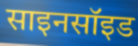
साइनसॉइड